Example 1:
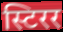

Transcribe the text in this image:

स्टिरर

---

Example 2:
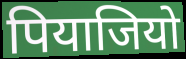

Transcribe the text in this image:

पियाजियो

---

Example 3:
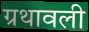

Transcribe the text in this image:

ग्रथावली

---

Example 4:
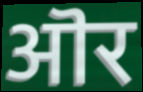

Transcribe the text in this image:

ऒर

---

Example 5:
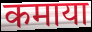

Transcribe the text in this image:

कमाया